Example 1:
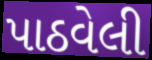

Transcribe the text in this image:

પાઠવેલી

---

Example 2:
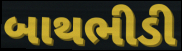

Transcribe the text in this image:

બાથભીડી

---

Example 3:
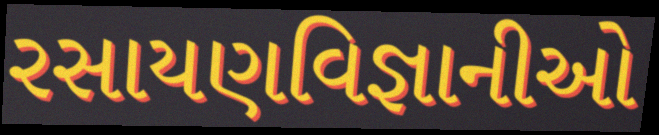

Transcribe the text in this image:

રસાયણવિજ્ઞાનીઓ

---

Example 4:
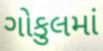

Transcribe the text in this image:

ગોકુલમાં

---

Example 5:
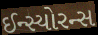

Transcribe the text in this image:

ઈન્સ્યોરન્સ